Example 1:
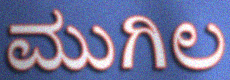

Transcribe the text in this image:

ಮುಗಿಲ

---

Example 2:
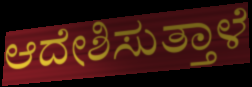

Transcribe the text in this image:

ಆದೇಶಿಸುತ್ತಾಳೆ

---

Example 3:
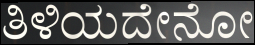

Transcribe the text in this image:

ತಿಳಿಯದೇನೋ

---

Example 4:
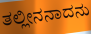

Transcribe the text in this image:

ತಲ್ಲೀನನಾದನು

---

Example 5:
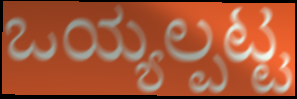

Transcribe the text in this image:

ಒಯ್ಯಲ್ಪಟ್ಟ